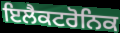
ਇਲੈਕਟਰੋਨਿਕ